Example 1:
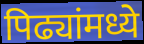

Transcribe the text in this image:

पिढ्यांमध्ये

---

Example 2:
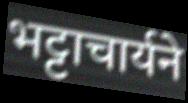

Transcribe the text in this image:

भट्टाचार्यने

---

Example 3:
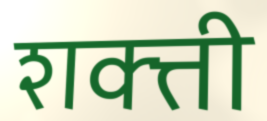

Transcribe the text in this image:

शक्त्ती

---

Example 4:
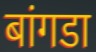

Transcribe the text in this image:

बांगडा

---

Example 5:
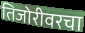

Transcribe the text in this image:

तिजोरीवरचा